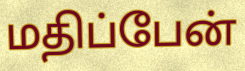
மதிப்பேன்